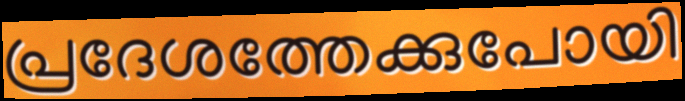
പ്രദേശത്തേക്കുപോയി